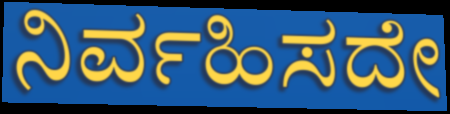
ನಿರ್ವಹಿಸದೇ